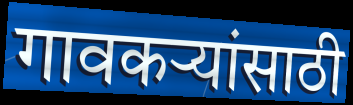
गावकऱ्यांसाठी